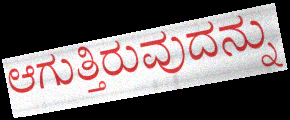
ಆಗುತ್ತಿರುವುದನ್ನು